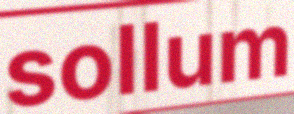
sollum